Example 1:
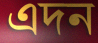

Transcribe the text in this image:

এদন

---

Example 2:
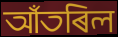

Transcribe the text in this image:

আঁতৰিল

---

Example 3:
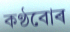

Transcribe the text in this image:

কণ্ঠবোৰ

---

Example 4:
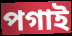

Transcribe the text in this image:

পগাই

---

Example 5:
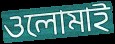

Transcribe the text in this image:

ওলোমাই